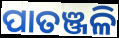
ପାତଞ୍ଜଳି